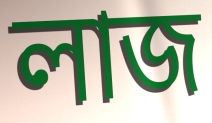
লাজ